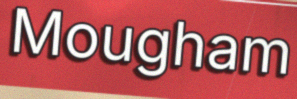
Mougham